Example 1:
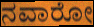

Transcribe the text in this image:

ನವಾರೋ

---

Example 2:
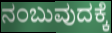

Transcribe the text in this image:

ನಂಬುವುದಕ್ಕೆ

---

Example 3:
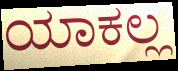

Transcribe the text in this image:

ಯಾಕಲ್ಲ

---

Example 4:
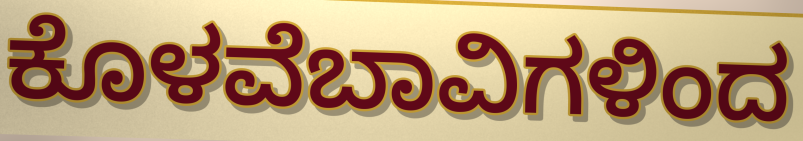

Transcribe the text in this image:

ಕೊಳವೆಬಾವಿಗಳಿಂದ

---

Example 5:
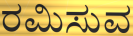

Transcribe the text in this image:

ರಮಿಸುವ